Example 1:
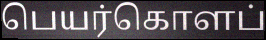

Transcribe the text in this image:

பெயர்கொளப்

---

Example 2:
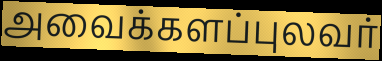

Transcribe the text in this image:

அவைக்களப்புலவர்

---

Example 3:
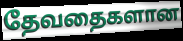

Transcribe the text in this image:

தேவதைகளான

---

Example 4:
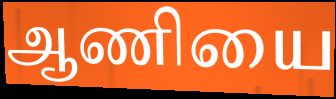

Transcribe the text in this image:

ஆணியை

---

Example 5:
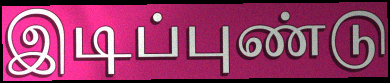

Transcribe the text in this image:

இடிப்புண்டு